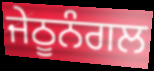
ਜੇਠੂਨੰਗਲ